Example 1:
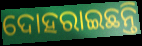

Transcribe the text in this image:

ଦୋହରାଇଛନ୍ତି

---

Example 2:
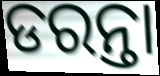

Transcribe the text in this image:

ଡରନ୍ତା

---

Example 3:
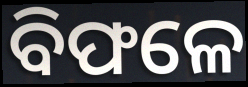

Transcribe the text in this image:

ବିଫଳେ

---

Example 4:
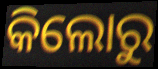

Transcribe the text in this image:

କିଲୋରୁ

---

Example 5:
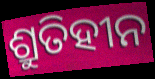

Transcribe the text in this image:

ଶ୍ରୁତିହୀନ